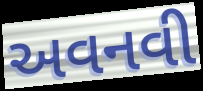
અવનવી